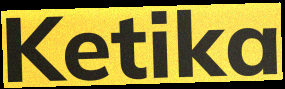
Ketika